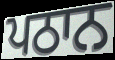
ਪਠਾਨ